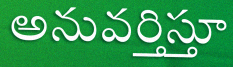
అనువర్తిస్తూ